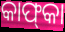
କାଫ୍‍କା